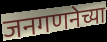
जनगणनेच्या